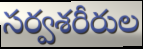
సర్వశరీరుల